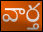
వార్త